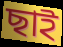
ছাই